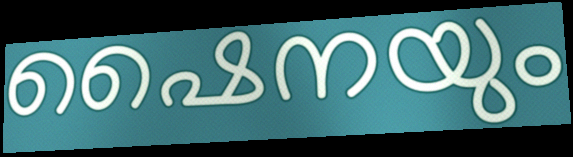
ഷൈനയും